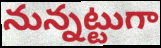
నున్నట్టుగా